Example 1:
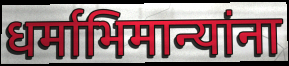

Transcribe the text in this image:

धर्माभिमान्यांना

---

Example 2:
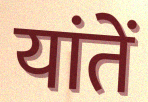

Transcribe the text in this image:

यांतें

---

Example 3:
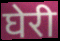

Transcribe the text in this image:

घेरी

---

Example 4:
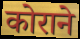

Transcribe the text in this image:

कोराने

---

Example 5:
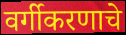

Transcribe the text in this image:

वर्गीकरणाचे